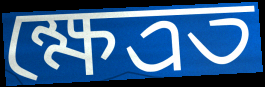
ক্ষেত্ৰত